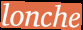
lonche